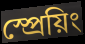
স্প্রেয়িং